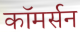
कॉमर्सन